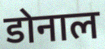
डोनाल